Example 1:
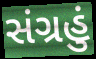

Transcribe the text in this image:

સંગ્રહું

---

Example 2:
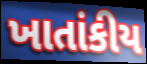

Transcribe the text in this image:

ખાતાંકીય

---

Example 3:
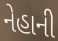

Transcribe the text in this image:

નેહાની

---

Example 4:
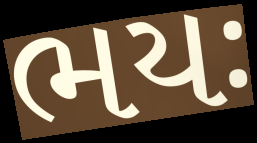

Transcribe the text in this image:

ભયઃ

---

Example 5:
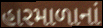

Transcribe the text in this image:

હારમાળાનાં